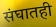
संघातही